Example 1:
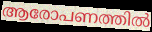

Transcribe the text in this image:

ആരോപണത്തിൽ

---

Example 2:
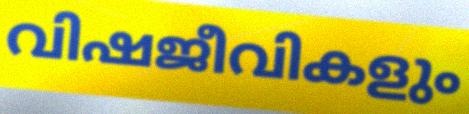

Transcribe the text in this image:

വിഷജീവികളും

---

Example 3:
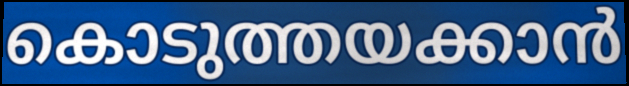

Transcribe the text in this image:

കൊടുത്തയക്കാൻ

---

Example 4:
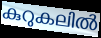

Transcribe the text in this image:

കുറുകലിൽ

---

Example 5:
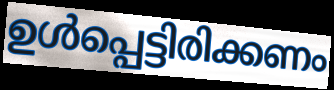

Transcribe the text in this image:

ഉൾപ്പെട്ടിരിക്കണം